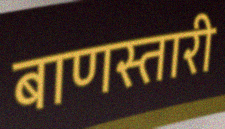
बाणस्तारी